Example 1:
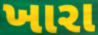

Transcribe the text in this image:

ખારા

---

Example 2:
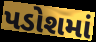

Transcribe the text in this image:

પડોશમાં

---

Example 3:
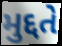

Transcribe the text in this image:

મુદ્દતે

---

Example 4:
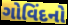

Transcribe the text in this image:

ગોવિંદનો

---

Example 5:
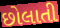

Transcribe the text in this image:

છોલાતી